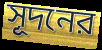
সূদনের